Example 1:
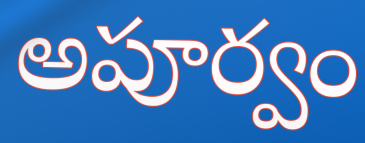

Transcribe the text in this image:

అపూర్వం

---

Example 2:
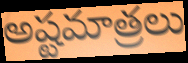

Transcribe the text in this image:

అష్టమాత్రలు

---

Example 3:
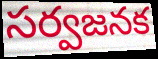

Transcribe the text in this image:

సర్వజనక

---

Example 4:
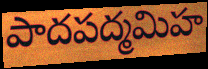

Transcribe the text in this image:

పాదపద్మమిహ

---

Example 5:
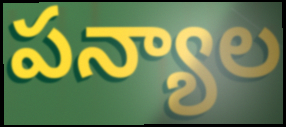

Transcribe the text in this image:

పన్యాల